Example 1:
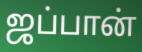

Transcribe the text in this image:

ஜப்பான்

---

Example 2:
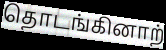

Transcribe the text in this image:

தொடங்கினாற்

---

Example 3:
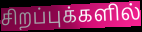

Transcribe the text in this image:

சிறப்புக்களில்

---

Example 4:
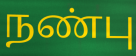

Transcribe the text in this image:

நண்பு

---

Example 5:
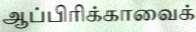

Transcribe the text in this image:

ஆப்பிரிக்காவைக்